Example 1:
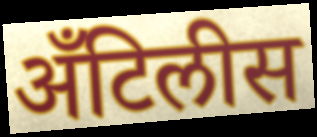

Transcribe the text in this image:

अँटिलीस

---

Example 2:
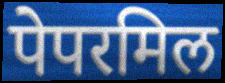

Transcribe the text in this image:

पेपरमिल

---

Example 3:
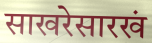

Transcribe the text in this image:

साखरेसारखं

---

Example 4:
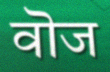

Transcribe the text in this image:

वॊज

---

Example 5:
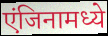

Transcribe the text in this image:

एंजिनामध्ये